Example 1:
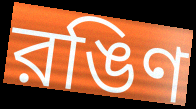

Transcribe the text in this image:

রঙিণ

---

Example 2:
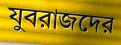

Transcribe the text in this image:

যুবরাজদের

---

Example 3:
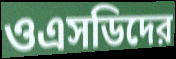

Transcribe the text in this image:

ওএসডিদের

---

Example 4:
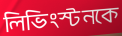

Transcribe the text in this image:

লিভিংস্টনকে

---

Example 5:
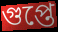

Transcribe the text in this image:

গুপ্তে